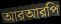
আরআরপি